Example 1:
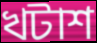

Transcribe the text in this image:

খটাশ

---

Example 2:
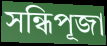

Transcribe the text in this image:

সন্ধিপূজা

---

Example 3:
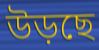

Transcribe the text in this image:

উড়ছে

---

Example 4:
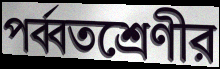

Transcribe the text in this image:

পর্ব্বতশ্রেণীর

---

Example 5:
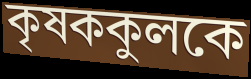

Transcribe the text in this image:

কৃষককুলকে